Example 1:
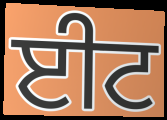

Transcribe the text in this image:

ਈਟ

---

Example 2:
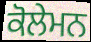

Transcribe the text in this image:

ਕੋਲੇਮਨ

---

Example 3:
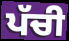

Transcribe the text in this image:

ਪੱਚੀ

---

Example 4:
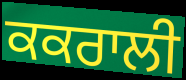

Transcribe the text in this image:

ਕਕਰਾਲੀ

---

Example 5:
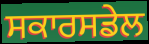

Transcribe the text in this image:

ਸਕਾਰਸਡੇਲ